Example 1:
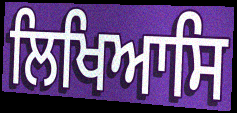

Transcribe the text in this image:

ਲਿਖਿਆਸਿ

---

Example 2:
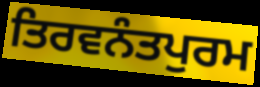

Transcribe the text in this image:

ਤਿਰਵਨੰਤਪੁਰਮ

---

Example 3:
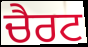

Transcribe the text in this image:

ਚੈਰਟ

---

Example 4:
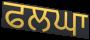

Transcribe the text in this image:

ਫਲਘਾ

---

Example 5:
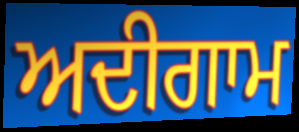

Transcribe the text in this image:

ਅਦੀਗਾਮ